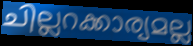
ചില്ലറക്കാര്യമല്ല